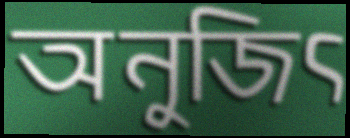
অনুজিৎ